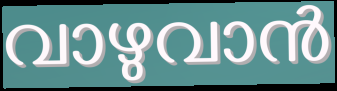
വാഴുവാൻ